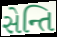
સેન્તિ